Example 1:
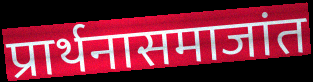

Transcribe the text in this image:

प्रार्थनासमाजांत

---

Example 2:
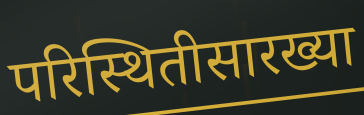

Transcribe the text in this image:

परिस्थितीसारख्या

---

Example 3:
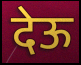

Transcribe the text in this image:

देऊ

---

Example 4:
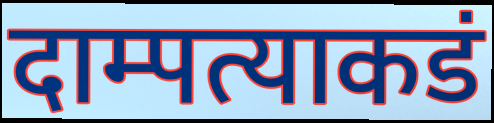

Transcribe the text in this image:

दाम्पत्याकडं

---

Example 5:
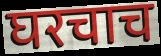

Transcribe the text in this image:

घरचाच